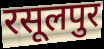
रसूलपुर